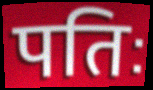
पतिः